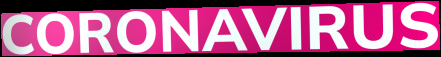
CORONAVIRUS